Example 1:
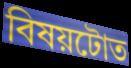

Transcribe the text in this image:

বিষয়টোত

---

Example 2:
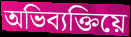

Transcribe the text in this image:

অভিব্যক্তিয়ে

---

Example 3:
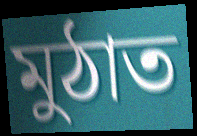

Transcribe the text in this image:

মুঠাত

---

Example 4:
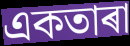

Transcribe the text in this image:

একতাৰা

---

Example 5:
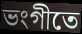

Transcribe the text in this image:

ভংগীতে